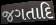
જગતાદિ